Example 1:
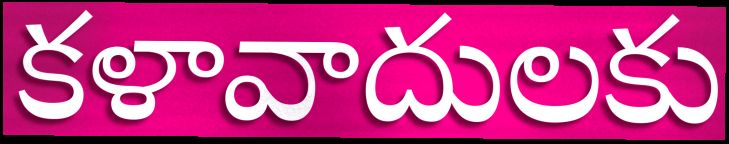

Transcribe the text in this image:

కళావాదులకు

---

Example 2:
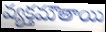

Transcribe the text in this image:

వ్యక్తమౌతాయి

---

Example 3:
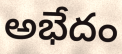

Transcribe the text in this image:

అభేదం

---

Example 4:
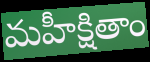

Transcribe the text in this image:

మహీక్షితాం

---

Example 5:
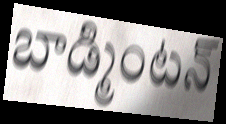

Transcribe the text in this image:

బాడ్మింటన్